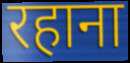
रहाना